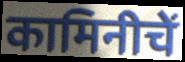
कामिनीचें